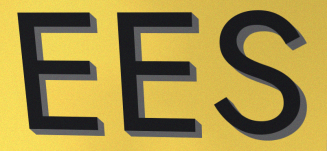
EES